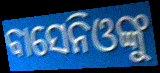
ବାସେନିଓଙ୍କୁ